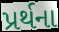
પ્રર્થના